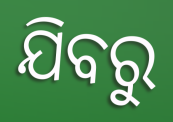
ଯିବରୁ